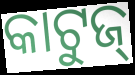
କାଟୁଜ୍